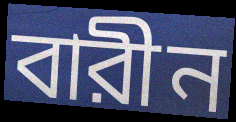
বারীন